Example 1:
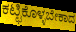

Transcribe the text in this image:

ಕಟ್ಟಿಕೊಳ್ಳಬೇಕಾದ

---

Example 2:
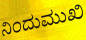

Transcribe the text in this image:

ನಿಂದುಮುಖಿ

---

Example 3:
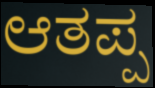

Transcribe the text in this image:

ಆತಪ್ಪ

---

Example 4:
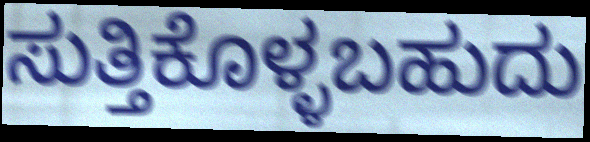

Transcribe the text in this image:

ಸುತ್ತಿಕೊಳ್ಳಬಹುದು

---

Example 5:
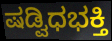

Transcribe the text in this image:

ಷಡ್ವಿಧಭಕ್ತಿ